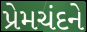
પ્રેમચંદને